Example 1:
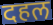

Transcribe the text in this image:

दहल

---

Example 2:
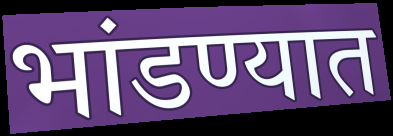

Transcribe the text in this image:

भांडण्यात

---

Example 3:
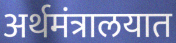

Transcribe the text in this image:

अर्थमंत्रालयात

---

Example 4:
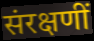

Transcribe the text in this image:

संरक्षणीं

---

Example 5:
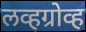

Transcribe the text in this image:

लव्हग्रोव्ह